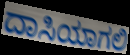
ದಾಸಿಯಾಗಲಿ